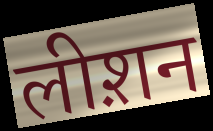
लीश़न